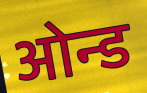
ओन्ड